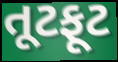
તૂટફૂટ